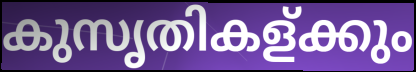
കുസൃതികള്ക്കും